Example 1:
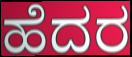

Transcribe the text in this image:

ಹೆದರ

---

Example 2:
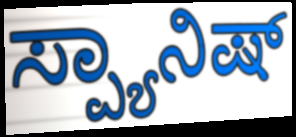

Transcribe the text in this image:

ಸ್ಪ್ಯಾನಿಷ್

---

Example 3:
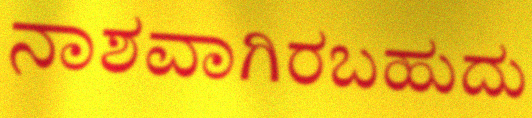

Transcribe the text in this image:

ನಾಶವಾಗಿರಬಹುದು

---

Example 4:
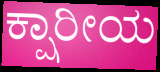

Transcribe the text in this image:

ಕ್ಷಾರೀಯ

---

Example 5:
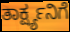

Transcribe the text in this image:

ತಾರ್ಕ್ಷ್ಯನಿಗೆ